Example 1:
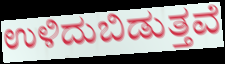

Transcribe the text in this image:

ಉಳಿದುಬಿಡುತ್ತವೆ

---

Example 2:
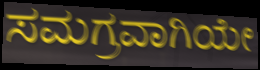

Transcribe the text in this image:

ಸಮಗ್ರವಾಗಿಯೇ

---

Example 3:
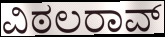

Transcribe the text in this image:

ವಿಠಲರಾವ್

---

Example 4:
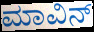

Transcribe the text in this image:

ಮಾವಿನ್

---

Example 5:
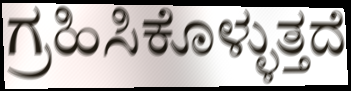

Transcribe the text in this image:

ಗ್ರಹಿಸಿಕೊಳ್ಳುತ್ತದೆ